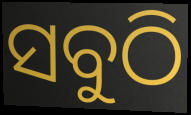
ସବୁଠି